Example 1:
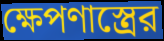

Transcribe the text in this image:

ক্ষেপণাস্ত্রের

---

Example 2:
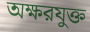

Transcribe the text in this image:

অক্ষরযুক্ত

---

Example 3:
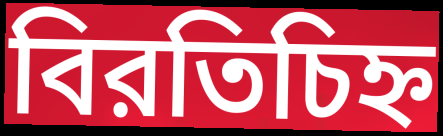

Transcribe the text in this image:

বিরতিচিহ্ন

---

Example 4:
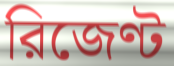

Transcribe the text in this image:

রিজেণ্ট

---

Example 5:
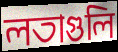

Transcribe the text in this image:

লতাগুলি